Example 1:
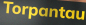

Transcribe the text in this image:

Torpantau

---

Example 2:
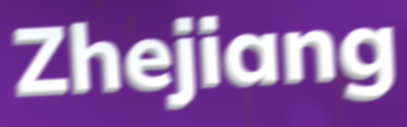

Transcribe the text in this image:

Zhejiang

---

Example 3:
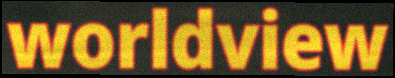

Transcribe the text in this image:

worldview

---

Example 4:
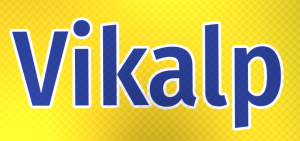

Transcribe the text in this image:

Vikalp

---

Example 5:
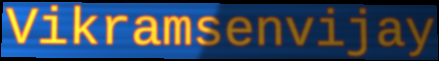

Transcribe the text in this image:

Vikramsenvijay